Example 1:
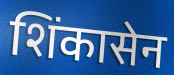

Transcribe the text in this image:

शिंकासेन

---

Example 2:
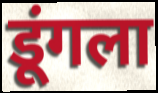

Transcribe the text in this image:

डूंगला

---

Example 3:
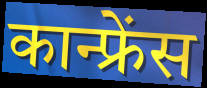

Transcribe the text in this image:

कान्फ्रेंस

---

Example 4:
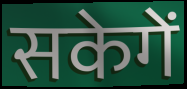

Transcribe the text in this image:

सकेगें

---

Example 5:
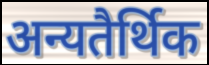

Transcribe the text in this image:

अन्यतैर्थिक